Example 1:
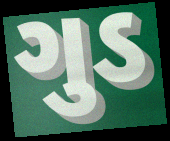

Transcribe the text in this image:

ગુડ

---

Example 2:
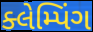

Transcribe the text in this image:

ક્લેમ્પિંગ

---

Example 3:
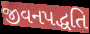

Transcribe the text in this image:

જીવનપદ્ધતિ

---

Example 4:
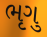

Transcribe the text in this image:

ભૃગુ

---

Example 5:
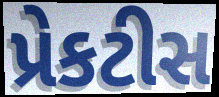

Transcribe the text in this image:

પ્રેકટીસ